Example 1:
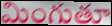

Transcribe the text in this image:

మింగుతూ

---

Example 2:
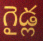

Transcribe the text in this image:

గైడ్ల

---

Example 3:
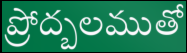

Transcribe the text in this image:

ప్రోద్బలముతో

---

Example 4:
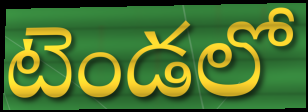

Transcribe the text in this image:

టెండలో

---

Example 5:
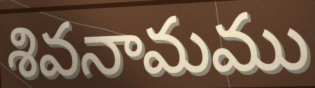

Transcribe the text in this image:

శివనామము